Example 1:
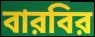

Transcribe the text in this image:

বারবির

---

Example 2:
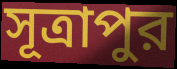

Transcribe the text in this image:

সূত্রাপুর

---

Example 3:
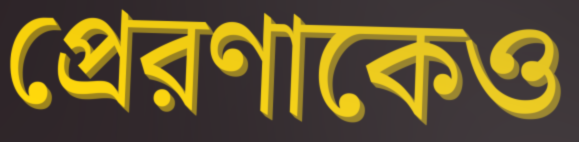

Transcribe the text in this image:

প্রেরণাকেও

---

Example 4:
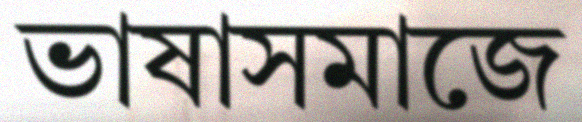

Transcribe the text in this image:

ভাষাসমাজে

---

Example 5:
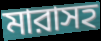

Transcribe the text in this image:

মারাসহ